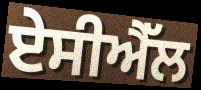
ਏਸੀਐੱਲ